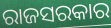
ରାଜସରକାର